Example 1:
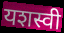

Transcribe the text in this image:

यशस्वी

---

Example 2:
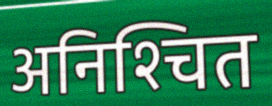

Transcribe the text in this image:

अनिश्चित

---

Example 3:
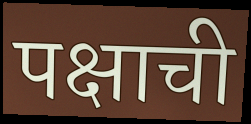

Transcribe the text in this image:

पक्षाची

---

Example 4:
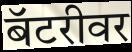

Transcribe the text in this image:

बॅटरीवर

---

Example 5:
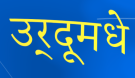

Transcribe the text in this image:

उर्दूमधे